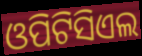
ଓପିଟିସିଏଲ